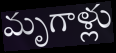
మృగాళ్లు